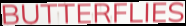
BUTTERFLIES